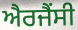
ਐਰਜੈਂਸੀ